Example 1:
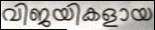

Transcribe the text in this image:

വിജയികളായ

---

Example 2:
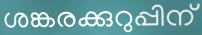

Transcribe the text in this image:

ശങ്കരക്കുറുപ്പിന്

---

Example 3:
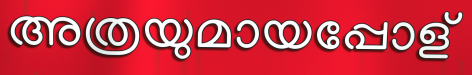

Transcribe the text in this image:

അത്രയുമായപ്പോള്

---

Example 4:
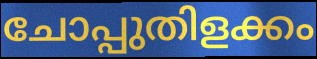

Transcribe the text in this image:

ചോപ്പുതിളക്കം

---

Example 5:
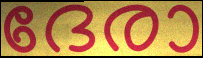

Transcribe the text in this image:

ദേരാ